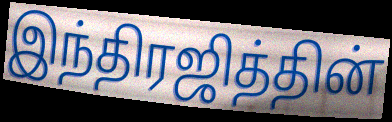
இந்திரஜித்தின்